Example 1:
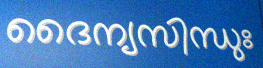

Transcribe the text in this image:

ദൈന്യസിന്ധുഃ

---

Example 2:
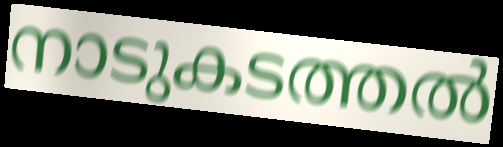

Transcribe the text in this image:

നാടുകടത്തൽ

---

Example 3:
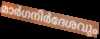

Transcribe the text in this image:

മാർഗനിർദേശവും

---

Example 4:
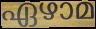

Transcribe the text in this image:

ഏഴാമ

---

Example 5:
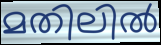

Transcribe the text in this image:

മതിലിൽ